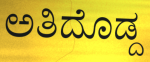
ಅತಿದೊಡ್ದ